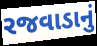
રજવાડાનું